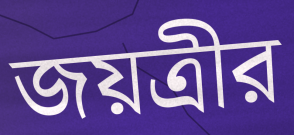
জয়ত্রীর